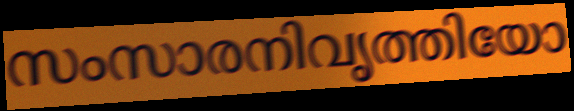
സംസാരനിവൃത്തിയോ